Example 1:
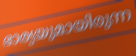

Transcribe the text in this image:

ഭാര്യയുമായിരുന്ന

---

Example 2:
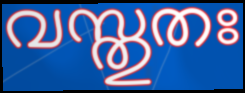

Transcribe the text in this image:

വസ്തുതഃ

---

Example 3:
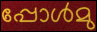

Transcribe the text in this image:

പ്പോൾമു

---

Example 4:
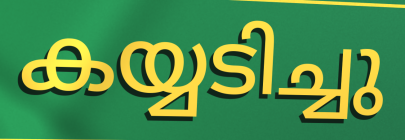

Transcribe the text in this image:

കയ്യടിച്ചു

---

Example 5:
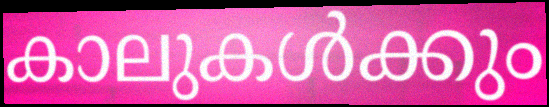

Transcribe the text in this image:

കാലുകൾക്കും